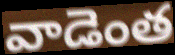
వాడెంత